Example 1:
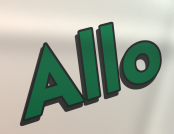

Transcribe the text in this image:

Allo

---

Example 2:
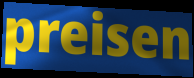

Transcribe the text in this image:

preisen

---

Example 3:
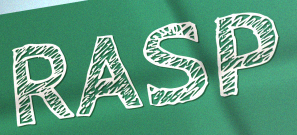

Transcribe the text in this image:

RASP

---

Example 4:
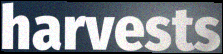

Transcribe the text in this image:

harvests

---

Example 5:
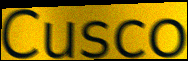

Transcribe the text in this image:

Cusco